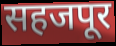
सहजपूर